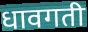
धावगती